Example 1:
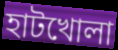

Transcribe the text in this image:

হাটখোলা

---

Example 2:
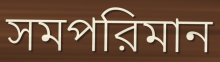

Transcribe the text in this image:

সমপরিমান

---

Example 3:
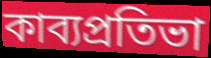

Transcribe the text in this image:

কাব্যপ্রতিভা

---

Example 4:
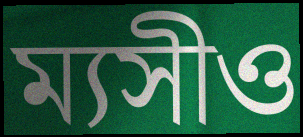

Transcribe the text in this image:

ম্যসীও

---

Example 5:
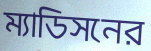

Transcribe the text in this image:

ম্যাডিসনের